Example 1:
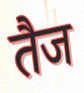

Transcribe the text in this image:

तैज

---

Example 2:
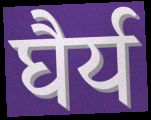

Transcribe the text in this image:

घैर्य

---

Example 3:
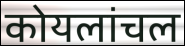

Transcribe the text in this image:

कोयलांचल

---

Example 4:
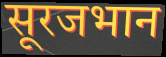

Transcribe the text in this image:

सूरजभान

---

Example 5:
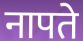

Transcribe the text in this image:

नापते